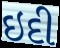
ઇદી